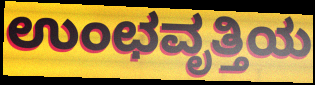
ಉಂಛವೃತ್ತಿಯ